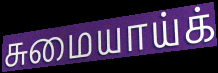
சுமையாய்க்